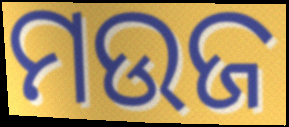
ମଉଜ